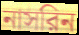
নাসরিন